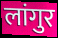
लांगुर